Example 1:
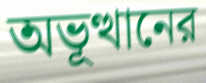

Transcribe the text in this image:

অভূত্থানের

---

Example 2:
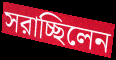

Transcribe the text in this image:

সরাচ্ছিলেন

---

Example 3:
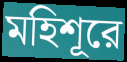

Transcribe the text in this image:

মহিশূরে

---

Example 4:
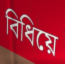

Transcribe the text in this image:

বিধিয়ে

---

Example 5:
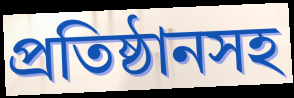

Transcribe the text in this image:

প্রতিষ্ঠানসহ